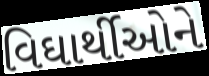
વિઘાર્થીઓને